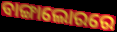
ବାଙ୍ଗାଲୋରରେ